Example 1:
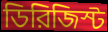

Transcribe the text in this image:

ডিরিজিস্ট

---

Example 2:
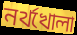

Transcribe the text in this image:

নর্থখোলা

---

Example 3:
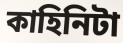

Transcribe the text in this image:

কাহিনিটা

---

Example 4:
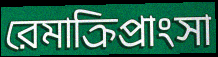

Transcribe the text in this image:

রেমাক্রিপ্রাংসা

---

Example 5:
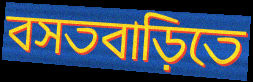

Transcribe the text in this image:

বসতবাড়িতে